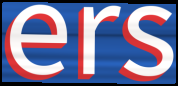
ers